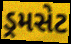
ડ્રમસેટ